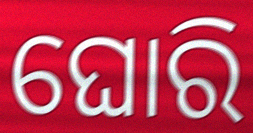
ଘୋରି